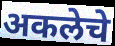
अकलेचे